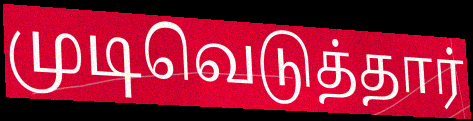
முடிவெடுத்தார்